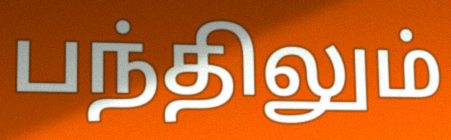
பந்திலும்